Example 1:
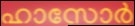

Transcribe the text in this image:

ഹാസോർ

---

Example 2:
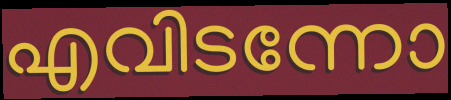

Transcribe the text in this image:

എവിടന്നോ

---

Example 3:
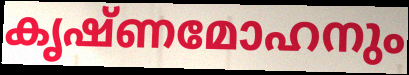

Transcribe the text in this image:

കൃഷ്ണമോഹനും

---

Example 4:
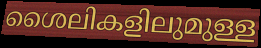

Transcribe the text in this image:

ശൈലികളിലുമുള്ള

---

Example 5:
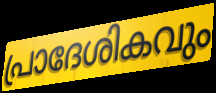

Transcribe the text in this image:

പ്രാദേശികവും